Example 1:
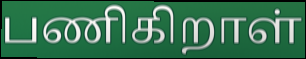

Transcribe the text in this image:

பணிகிறாள்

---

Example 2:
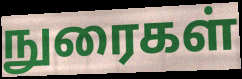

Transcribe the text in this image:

நுரைகள்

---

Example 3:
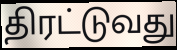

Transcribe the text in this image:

திரட்டுவது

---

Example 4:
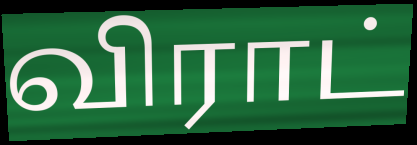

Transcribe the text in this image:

விராட்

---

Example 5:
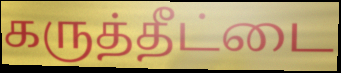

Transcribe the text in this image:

கருத்தீட்டை